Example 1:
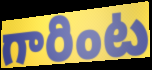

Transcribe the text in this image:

గారింట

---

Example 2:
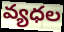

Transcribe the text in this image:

వ్యధల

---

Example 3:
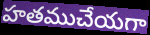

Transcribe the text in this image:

హతముచేయగా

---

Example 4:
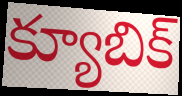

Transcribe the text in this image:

క్యూబిక్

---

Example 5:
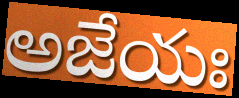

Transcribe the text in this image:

అజేయః